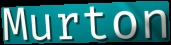
Murton